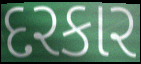
દરકાર